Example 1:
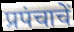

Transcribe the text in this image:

प्रपंचाचें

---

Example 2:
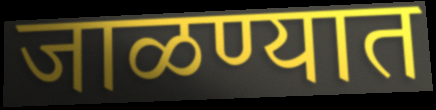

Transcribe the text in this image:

जाळण्यात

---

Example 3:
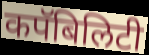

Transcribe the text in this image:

कपॅबिलिटी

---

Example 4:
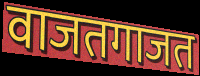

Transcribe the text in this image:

वाजतगाजत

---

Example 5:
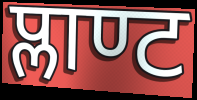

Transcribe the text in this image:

प्लाण्ट